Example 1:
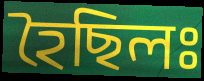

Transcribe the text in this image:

হৈছিলঃ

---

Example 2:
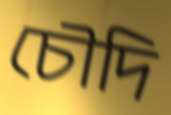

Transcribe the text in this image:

চৌদি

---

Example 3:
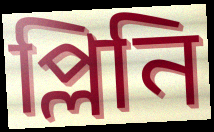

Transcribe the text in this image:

প্লিনি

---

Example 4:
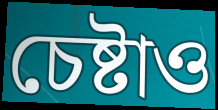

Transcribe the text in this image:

চেষ্টাও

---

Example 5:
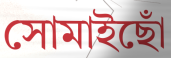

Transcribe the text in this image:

সোমাইছোঁ